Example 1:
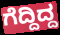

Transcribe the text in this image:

ಗೆದ್ದಿದ್ದ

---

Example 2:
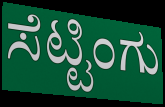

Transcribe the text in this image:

ಸೆಟ್ಟಿಂಗು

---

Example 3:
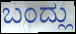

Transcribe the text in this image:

ಬಂದ್ಲು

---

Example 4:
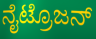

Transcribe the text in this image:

ನೈಟ್ರೊಜನ್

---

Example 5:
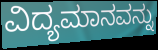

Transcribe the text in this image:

ವಿದ್ಯಮಾನವನ್ನು